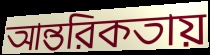
আন্তরিকতায়